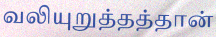
வலியுறுத்தத்தான்